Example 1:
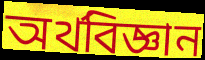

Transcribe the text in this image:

অৰ্থবিজ্ঞান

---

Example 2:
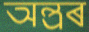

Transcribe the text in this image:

অন্ত্ৰৰ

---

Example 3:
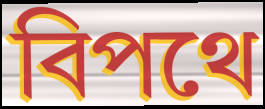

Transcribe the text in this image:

বিপথে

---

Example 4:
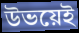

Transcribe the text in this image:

উভয়েই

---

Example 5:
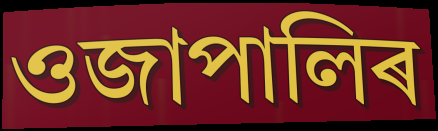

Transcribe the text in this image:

ওজাপালিৰ